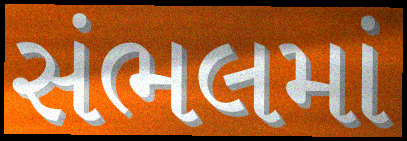
સંભલમાં